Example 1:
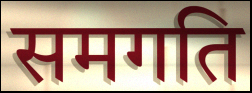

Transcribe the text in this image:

समगति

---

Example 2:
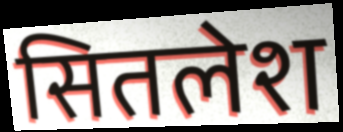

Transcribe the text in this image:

सितलेश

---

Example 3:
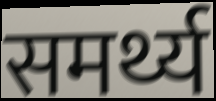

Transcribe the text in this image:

समर्थ्य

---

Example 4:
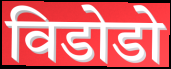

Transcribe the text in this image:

विडोडो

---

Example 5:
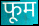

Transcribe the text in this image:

फूम